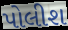
પોલીશ